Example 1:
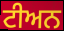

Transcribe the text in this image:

ਟੀਅਨ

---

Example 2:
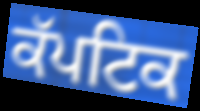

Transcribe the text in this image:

ਕੱਪਟਿਕ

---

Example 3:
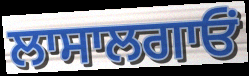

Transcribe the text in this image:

ਲਾਸਾਲਗਾਓਂ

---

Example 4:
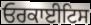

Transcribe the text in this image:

ਓਰਕਾਈਟਿਸ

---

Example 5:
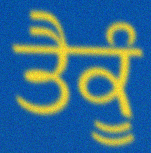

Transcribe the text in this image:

ਤੈਕੂੰ